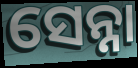
ସେନ୍ନା